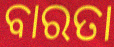
ବାରତା